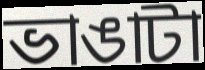
ভাঙাটা